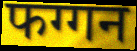
फग्‍गन